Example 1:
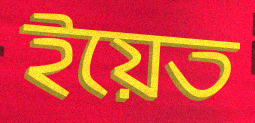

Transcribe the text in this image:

ইয়েত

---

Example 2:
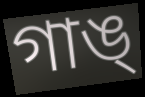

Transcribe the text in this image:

গাঙ্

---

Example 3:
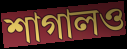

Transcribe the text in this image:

শাগালও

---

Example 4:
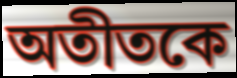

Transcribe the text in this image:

অতীতকে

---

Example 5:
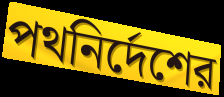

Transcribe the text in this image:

পথনির্দেশের